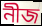
নীজ